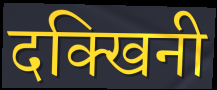
दक्खिनी